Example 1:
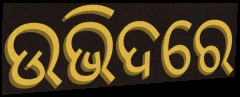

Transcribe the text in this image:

ଉଭିଦରେ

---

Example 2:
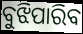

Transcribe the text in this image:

ବୁଝିପାରିବ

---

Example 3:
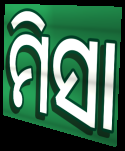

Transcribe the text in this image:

ମିସା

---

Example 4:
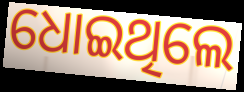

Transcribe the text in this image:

ଧୋଇଥିଲେ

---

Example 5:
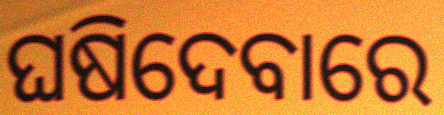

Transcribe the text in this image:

ଘଷିଦେବାରେ